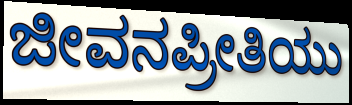
ಜೀವನಪ್ರೀತಿಯು